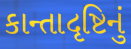
કાન્તાદૃષ્ટિનું